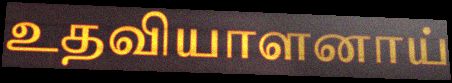
உதவியாளனாய்